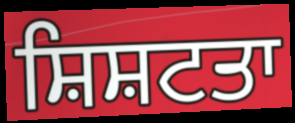
ਸ਼ਿਸ਼ਟਤਾ